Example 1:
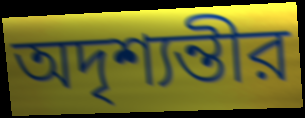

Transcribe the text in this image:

অদৃশ্যন্তীর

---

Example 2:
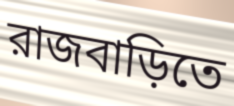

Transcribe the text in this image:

রাজবাড়িতে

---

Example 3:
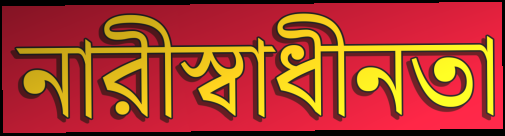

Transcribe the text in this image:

নারীস্বাধীনতা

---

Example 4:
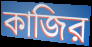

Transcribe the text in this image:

কাজির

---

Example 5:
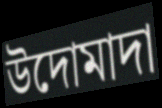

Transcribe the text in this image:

উদোমাদা